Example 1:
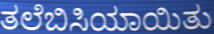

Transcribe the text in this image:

ತಲೆಬಿಸಿಯಾಯಿತು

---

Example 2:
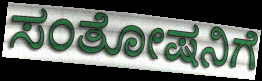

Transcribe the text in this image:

ಸಂತೋಷನಿಗೆ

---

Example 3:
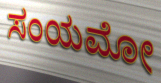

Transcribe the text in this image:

ಸಂಯಮೋ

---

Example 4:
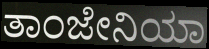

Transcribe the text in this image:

ತಾಂಜೇನಿಯಾ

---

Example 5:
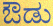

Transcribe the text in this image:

ಔಡು